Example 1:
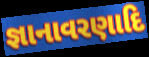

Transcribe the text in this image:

જ્ઞાનાવરણાદિ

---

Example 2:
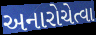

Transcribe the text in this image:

અનારોચેત્વા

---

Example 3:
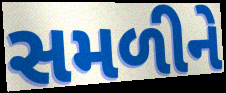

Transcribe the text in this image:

સમળીને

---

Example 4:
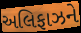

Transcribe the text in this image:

અલિફાઝને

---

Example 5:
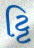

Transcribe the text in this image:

ટ્ટિ